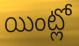
యింట్లో